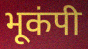
भूकंपी